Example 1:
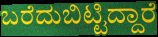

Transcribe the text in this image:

ಬರೆದುಬಿಟ್ಟಿದ್ದಾರೆ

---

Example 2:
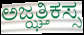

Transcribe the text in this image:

ಅಜ್ಝತ್ತಿಕಸ್ಸ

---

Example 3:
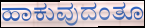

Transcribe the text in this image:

ಹಾಕುವುದಂತೂ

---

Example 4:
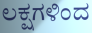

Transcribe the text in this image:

ಲಕ್ಷಗಳಿಂದ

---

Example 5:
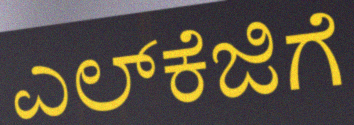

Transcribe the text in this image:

ಎಲ್‌ಕೆಜಿಗೆ